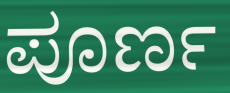
ಪೂರ್ಣ